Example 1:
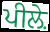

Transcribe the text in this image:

ਪੀਲ਼ੇ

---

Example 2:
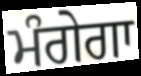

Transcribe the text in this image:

ਮੰਗੇਗਾ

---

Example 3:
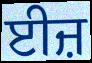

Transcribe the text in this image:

ਈਜ਼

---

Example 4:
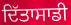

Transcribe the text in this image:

ਦਿੱਤਾਸਾਡੀ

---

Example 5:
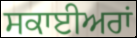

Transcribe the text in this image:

ਸਕਾਈਅਰਾਂ